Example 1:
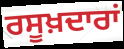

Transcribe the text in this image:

ਰਸੂਖ਼ਦਾਰਾਂ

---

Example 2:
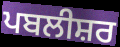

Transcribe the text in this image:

ਪਬਲੀਸ਼ਰ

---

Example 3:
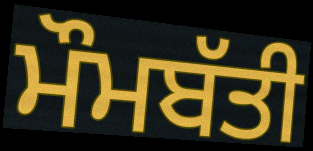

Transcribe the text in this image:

ਮੌਮਬੱਤੀ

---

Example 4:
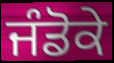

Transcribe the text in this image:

ਜੰਡੋਕੇ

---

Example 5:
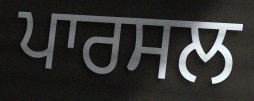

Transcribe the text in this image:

ਪਾਰਸਲ